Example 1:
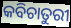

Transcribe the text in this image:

କବିଚାତୁରୀ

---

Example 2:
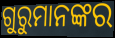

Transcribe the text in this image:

ଗୁରୁମାନଙ୍କର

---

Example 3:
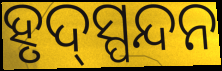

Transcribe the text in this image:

ହୃଦ୍‍ସ୍ପନ୍ଦନ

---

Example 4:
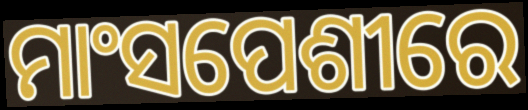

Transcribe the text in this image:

ମାଂସପେଶୀରେ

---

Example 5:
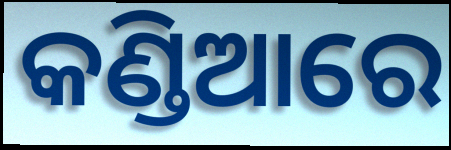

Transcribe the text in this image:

କଣ୍ଡିଆରେ